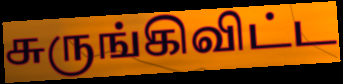
சுருங்கிவிட்ட